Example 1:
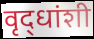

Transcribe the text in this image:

वृद्धांशी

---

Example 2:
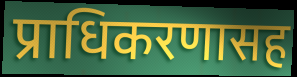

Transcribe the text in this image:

प्राधिकरणासह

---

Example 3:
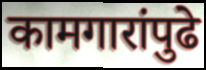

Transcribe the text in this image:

कामगारांपुढे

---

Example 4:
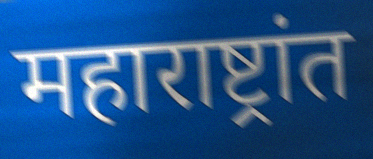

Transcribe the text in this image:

महाराष्ट्रांत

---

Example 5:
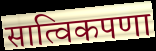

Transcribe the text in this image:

सात्विकपणा